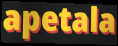
apetala